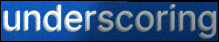
underscoring